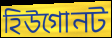
হিউগোনট